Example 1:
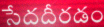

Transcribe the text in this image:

సేదదీరడం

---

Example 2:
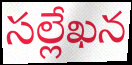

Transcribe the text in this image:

సల్లేఖన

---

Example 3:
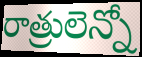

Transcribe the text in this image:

రాత్రులెన్నో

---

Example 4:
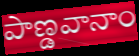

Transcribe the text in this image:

పాణ్డవానాం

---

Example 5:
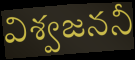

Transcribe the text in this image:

విశ్వజననీ